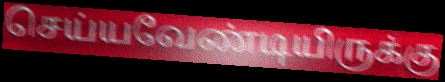
செய்யவேண்டியிருக்கு